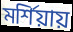
মর্শিয়ায়